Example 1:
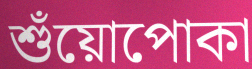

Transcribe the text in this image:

শুঁয়োপোকা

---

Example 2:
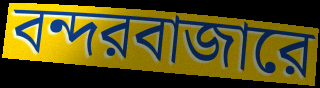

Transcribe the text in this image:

বন্দরবাজারে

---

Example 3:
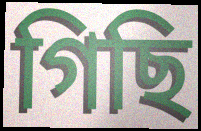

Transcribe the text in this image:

গিছি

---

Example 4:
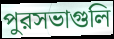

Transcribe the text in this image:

পুরসভাগুলি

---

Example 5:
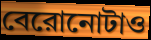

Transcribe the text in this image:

বেরোনোটাও